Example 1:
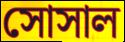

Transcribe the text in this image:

সোসাল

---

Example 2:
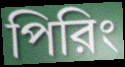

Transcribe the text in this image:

পিরিং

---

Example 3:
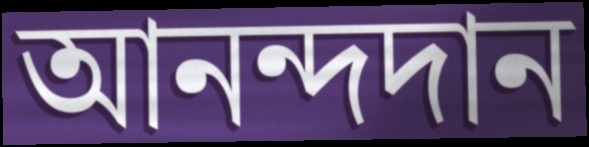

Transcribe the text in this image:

আনন্দদান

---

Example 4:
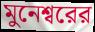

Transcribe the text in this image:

মুনেশ্বরের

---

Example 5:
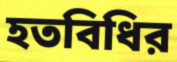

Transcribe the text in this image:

হতবিধির